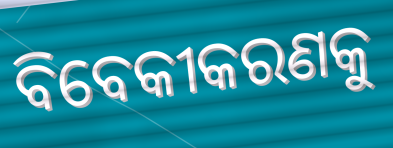
ବିବେକୀକରଣକୁ